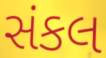
સંકલ